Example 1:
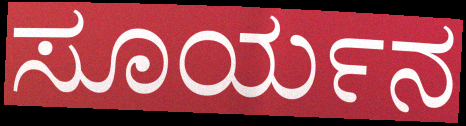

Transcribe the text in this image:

ಸೂರ್ಯನ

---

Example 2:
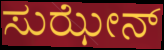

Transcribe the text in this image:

ಸುಝೇನ್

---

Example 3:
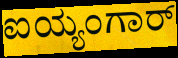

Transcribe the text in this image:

ಐಯ್ಯಂಗಾರ್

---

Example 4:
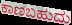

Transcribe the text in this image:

ಕಾಣಬಹುದು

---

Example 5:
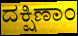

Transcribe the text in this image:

ದಕ್ಷಿಣಾಂ